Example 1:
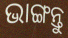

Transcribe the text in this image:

ଭାଙ୍ଗନ୍ତୁ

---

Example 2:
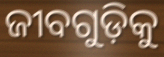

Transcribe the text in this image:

ଜୀବଗୁଡ଼ିକୁ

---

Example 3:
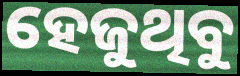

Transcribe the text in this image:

ହେଜୁଥିବୁ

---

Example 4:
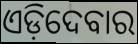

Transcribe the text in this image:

ଏଡ଼ିଦେବାର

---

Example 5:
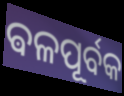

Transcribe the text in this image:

ଵଳପୂର୍ବକ